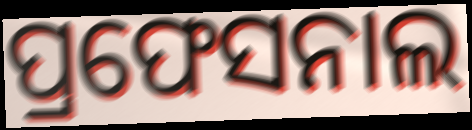
ପ୍ରଫେସନାଲ